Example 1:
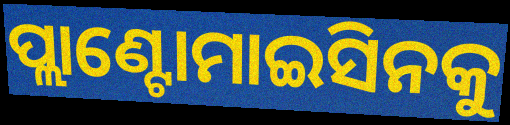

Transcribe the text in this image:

ପ୍ଲାଣ୍ଟୋମାଇସିନକୁ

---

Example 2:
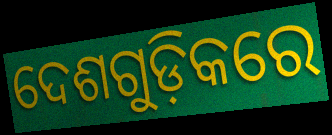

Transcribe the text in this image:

ଦେଶଗୁଡ଼ିକରେ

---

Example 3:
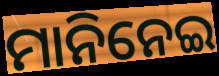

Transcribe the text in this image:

ମାନିନେଇ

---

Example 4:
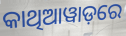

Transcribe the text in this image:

କାଥିଆୱାଡ଼ରେ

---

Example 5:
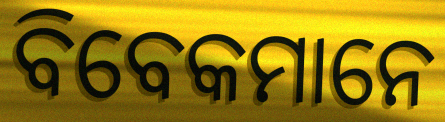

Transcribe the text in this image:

ବିବେକମାନେ